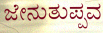
ಜೇನುತುಪ್ಪವ